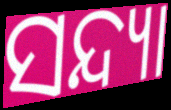
ସନ୍ଦ୍ୟା